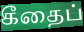
கீதைப்